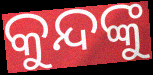
କୁନ୍ଦଙ୍କୁ